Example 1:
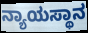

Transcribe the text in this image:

ನ್ಯಾಯಸ್ಥಾನ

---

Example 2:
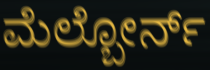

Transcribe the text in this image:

ಮೆಲ್ಬೋರ್ನ್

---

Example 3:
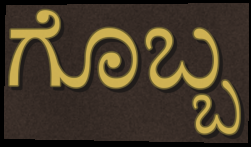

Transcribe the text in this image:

ಗೊಬ್ಬ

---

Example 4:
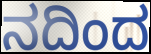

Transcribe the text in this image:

ನದಿಂದ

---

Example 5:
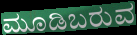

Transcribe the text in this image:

ಮೂಡಿಬರುವ